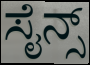
ಸೈನ್ಸ್